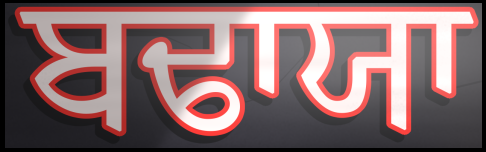
ਬਢਾਯਾ